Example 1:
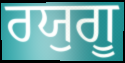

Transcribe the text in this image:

ਰਯੁਗੂ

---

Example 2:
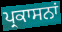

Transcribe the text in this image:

ਪ੍ਰਕਾਸਨਾਂ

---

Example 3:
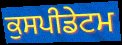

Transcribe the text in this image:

ਕੁਸਪੀਡੇਟਮ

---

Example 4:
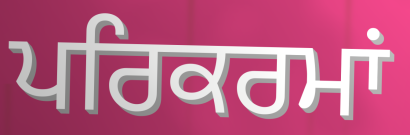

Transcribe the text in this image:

ਪਰਿਕਰਮਾਂ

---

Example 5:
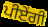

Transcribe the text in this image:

ਪੀਏਂਗੀ